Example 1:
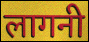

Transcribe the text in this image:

लागनी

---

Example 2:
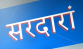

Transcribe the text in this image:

सरदारां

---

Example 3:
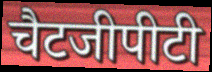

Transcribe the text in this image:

चैटजीपीटी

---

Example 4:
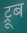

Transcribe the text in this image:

ट्रूब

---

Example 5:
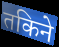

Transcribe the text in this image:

तकिने